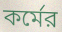
কর্মের